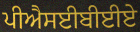
ਪੀਐਸਈਬੀਈਏ